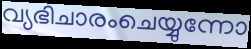
വ്യഭിചാരംചെയ്യുന്നോ